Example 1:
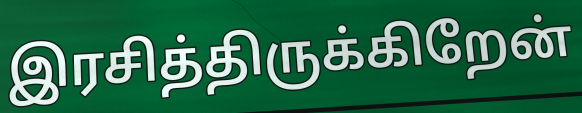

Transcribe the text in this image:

இரசித்திருக்கிறேன்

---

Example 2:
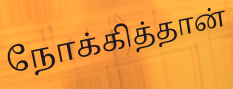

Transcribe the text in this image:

நோக்கித்தான்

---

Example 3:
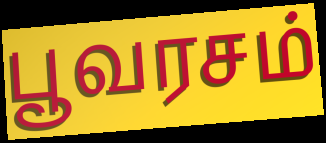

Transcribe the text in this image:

பூவரசம்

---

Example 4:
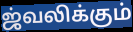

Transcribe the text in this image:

ஜ்வலிக்கும்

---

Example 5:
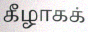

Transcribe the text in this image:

கீழாகக்